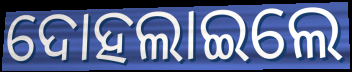
ଦୋହଲାଇଲେ